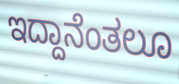
ಇದ್ದಾನೆಂತಲೂ